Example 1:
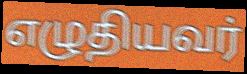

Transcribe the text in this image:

எழுதியவர்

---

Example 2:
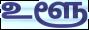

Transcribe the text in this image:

உளூ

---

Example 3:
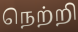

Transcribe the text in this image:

நெற்றி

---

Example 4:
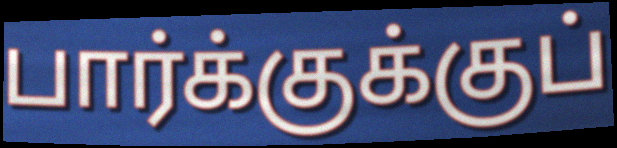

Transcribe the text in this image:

பார்க்குக்குப்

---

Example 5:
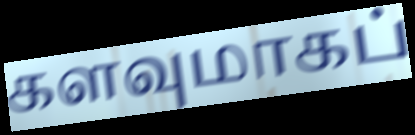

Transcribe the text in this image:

களவுமாகப்